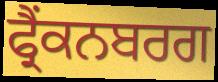
ਫ੍ਰੈਂਕਨਬਰਗ